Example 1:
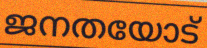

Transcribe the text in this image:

ജനതയോട്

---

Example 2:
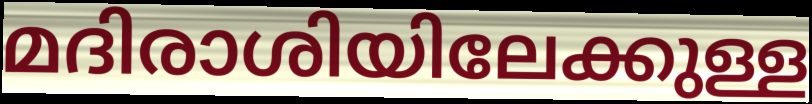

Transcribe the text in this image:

മദിരാശിയിലേക്കുള്ള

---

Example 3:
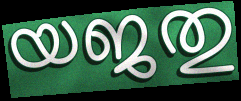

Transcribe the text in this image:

യജതു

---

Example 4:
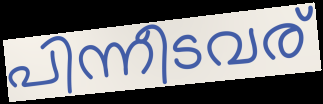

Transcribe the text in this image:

പിന്നീടവര്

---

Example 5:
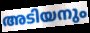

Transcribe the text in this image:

അടിയനും